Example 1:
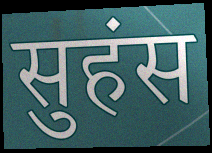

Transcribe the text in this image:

सुहंस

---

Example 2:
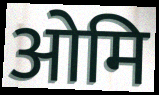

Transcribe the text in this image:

ओमि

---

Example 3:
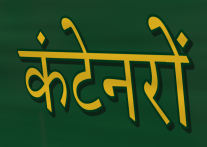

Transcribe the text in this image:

कंटेनरों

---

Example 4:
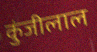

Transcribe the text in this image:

कुंजीलाल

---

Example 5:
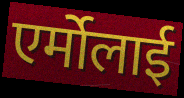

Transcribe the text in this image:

एर्मोलाई